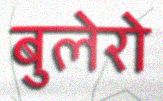
बुलेरो